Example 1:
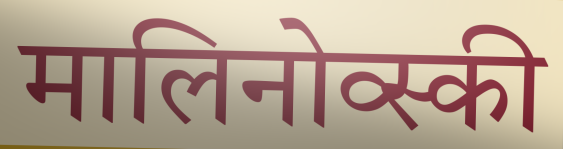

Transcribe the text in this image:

मालिनोव्स्की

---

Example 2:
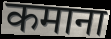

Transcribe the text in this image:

कमाना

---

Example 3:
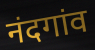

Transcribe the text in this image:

नंदगांव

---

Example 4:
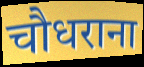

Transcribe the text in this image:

चौधराना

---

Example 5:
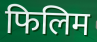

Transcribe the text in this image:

फिलिम